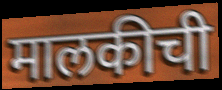
मालकीची